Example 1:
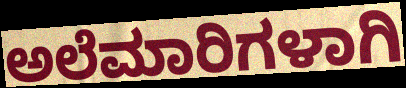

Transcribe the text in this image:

ಅಲೆಮಾರಿಗಳಾಗಿ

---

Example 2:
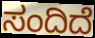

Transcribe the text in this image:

ಸಂದಿದೆ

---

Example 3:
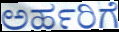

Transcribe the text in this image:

ಅರ್ಹರಿಗೆ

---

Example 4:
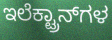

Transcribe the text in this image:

ಇಲೆಕ್ಟ್ರಾನ್‍ಗಳ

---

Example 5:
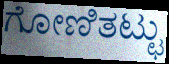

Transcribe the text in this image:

ಗೋಣಿತಟ್ಟು